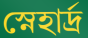
স্নেহার্দ্র